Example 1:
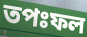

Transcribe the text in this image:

তপঃফল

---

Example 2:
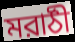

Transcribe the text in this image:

মরাঠী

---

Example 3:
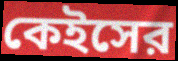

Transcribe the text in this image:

কেইসের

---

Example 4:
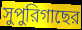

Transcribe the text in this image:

সুপুরিগাছের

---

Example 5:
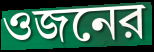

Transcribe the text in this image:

ওজনের